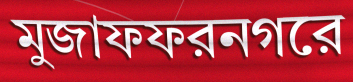
মুজাফফরনগরে